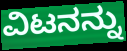
ವಿಟನನ್ನು